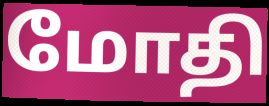
மோதி